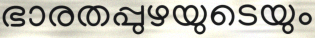
ഭാരതപ്പുഴയുടെയും